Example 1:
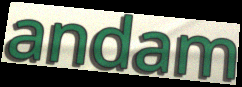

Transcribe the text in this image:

andam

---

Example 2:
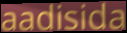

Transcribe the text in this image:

aadisida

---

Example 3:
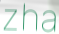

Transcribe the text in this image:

zha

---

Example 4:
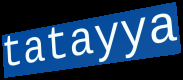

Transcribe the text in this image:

tatayya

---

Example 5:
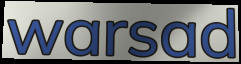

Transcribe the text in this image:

warsad